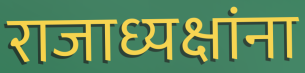
राजाध्यक्षांना